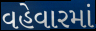
વહેવારમાં